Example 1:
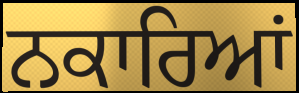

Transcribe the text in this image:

ਨਕਾਰਿਆਂ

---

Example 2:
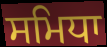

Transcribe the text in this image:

ਸਮਿਧਾ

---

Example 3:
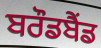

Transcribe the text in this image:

ਬਰੌਡਬੈਂਡ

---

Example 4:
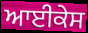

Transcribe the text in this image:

ਆਈਕੇਸ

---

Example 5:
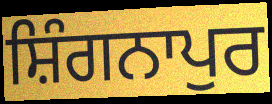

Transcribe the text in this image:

ਸ਼ਿੰਗਨਾਪੁਰ